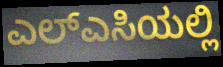
ಎಲ್ಎಸಿಯಲ್ಲಿ